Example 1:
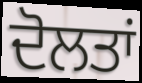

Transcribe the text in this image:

ਦੋਲਤਾਂ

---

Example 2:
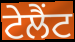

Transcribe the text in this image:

ਟੇਲੈਂਟ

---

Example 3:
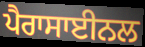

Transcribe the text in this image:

ਪੈਰਾਸਾਈਨਲ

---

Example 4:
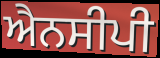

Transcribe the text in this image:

ਐਨਸੀਪੀ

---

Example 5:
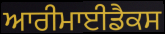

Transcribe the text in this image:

ਆਰੀਮਾਈਡੈਕਸ